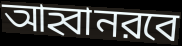
আহ্বানরবে